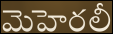
మెహెరలీ